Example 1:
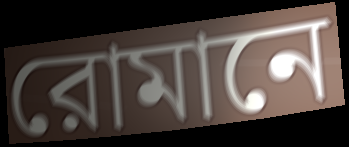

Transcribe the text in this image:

রোমানে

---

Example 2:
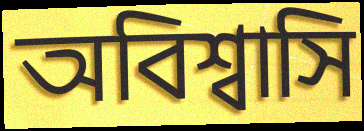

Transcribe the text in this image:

অবিশ্বাসি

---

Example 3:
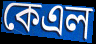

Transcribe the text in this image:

কেএল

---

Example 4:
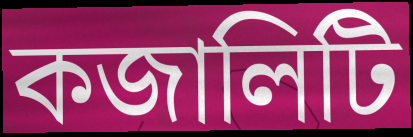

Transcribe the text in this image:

কজালিটি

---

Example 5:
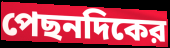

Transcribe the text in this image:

পেছনদিকের